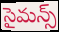
సైమన్స్